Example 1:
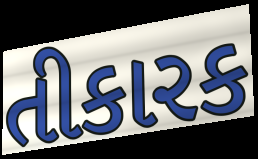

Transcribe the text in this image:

તીકારક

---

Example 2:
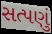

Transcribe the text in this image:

સત્પણું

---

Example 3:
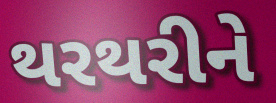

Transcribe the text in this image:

થરથરીને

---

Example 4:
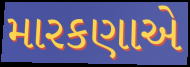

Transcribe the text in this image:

મારકણાએ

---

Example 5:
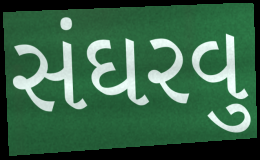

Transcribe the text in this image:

સંઘરવુ